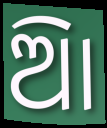
ଆି